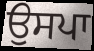
ਉਸਪਾ